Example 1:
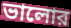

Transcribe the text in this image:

ভালোর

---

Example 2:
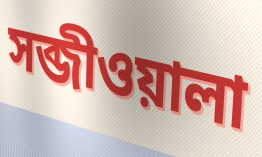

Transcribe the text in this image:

সব্জীওয়ালা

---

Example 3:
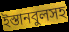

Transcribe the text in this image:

ইস্তানবুলসহ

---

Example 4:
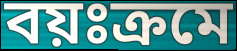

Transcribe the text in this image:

বয়ঃক্রমে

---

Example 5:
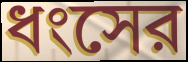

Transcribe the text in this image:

ধংসের